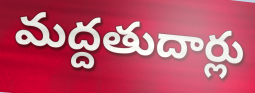
మద్దతుదార్లు